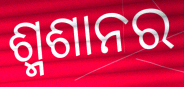
ଶ୍ମଶାନର